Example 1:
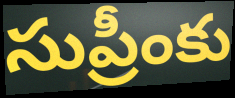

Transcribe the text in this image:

సుప్రీంకు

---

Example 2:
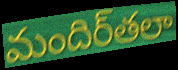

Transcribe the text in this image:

మందిర్‌తలా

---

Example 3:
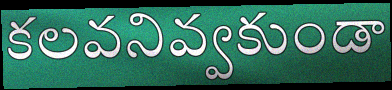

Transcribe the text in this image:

కలవనివ్వకుండా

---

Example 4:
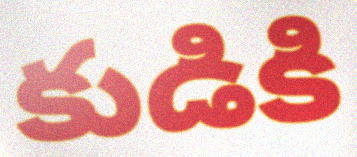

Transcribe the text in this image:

కుడికి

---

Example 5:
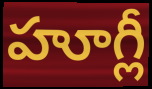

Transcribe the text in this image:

హూగ్లీ